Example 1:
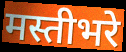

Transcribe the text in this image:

मस्तीभरे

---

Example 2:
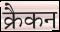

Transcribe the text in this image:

क्रैकन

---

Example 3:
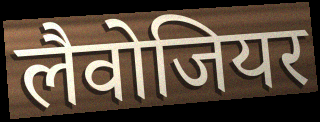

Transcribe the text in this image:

लैवोजियर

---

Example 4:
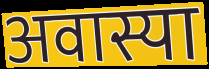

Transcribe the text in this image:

अवास्या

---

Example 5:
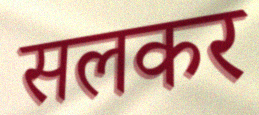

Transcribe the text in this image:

सलकर